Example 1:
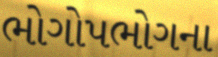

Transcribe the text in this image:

ભોગોપભોગના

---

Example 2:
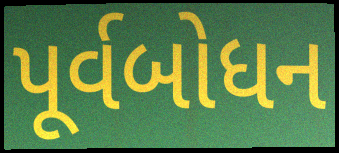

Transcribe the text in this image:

પૂર્વબોધન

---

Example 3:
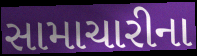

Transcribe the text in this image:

સામાચારીના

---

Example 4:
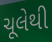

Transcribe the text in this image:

ચૂલેથી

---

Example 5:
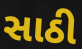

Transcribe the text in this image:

સાઠી